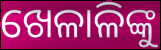
ଖେଳାଳିଙ୍କୁ